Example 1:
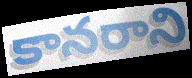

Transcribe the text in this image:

కానరాని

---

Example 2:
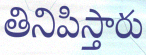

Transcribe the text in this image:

తినిపిస్తారు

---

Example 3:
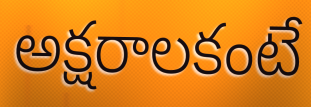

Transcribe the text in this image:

అక్షరాలకంటే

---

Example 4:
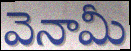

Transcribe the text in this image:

వెనామీ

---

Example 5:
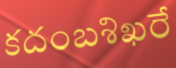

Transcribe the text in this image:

కదంబశిఖరే